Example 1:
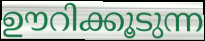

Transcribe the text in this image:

ഊറിക്കൂടുന്ന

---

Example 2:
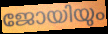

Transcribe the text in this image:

ജോയിയും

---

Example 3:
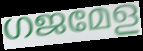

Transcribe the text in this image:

ഗജമേള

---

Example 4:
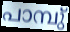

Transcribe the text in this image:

പാമ്പു്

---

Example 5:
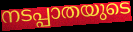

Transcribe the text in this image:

നടപ്പാതയുടെ